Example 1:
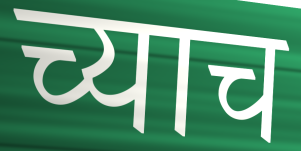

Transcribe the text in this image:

च्याच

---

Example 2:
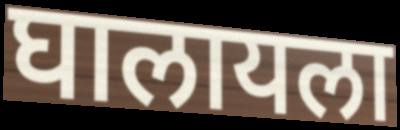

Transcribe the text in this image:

घालायला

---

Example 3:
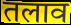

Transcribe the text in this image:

तलाव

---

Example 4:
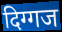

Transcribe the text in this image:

दिग्गज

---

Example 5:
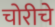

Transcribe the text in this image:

चोरीचे